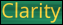
Clarity